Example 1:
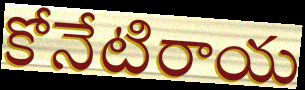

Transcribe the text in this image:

కోనేటిరాయ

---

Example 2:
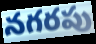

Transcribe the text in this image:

నగరపు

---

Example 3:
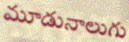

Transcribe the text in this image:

మూడునాలుగు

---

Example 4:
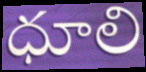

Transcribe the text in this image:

ధూలి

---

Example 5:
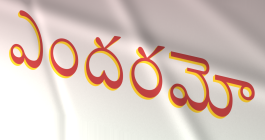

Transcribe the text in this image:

ఎందరమో